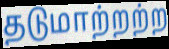
தடுமாற்றற்ற